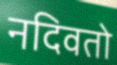
नदिवतो